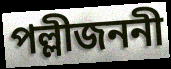
পল্লীজননী